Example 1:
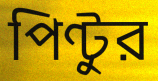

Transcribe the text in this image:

পিণ্টুর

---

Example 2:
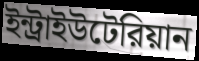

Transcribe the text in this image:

ইন্ট্রাইউটেরিয়ান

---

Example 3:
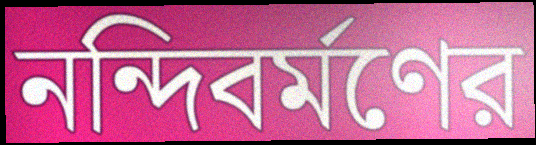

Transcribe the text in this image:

নন্দিবর্মণের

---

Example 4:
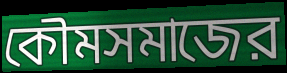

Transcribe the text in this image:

কৌমসমাজের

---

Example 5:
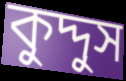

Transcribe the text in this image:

কুদ্দুস